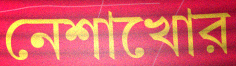
নেশাখোর